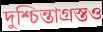
দুশ্চিন্তাগ্রস্তও